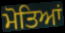
ਮੋਤਿਆਂ